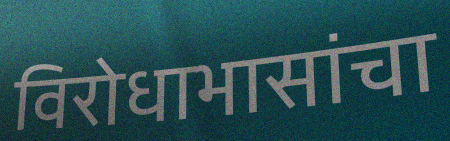
विरोधाभासांचा